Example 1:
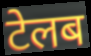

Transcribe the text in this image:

टेलब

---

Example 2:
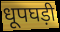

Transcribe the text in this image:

धूपघड़ी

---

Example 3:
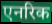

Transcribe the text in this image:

एनरिक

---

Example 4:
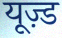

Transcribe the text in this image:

यूज़्ड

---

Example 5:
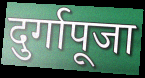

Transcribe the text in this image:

दुर्गापूजा